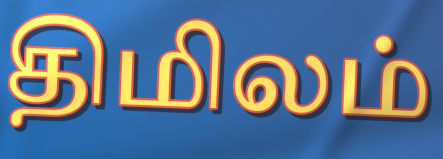
திமிலம்